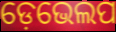
ଡ଼େଭେଲପ